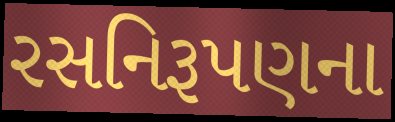
રસનિરૂપણના